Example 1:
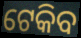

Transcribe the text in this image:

ଟେକିବ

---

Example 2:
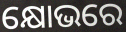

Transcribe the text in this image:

କ୍ଷୋଭରେ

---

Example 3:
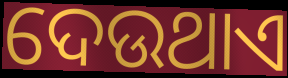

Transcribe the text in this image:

ଦେଉଥାଏ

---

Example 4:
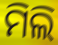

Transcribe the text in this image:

ମିଲି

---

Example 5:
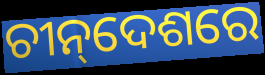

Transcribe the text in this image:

ଚୀନ୍‌ଦେଶରେ